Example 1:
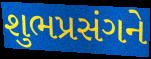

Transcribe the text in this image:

શુભપ્રસંગને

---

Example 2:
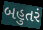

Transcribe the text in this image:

બહુતરં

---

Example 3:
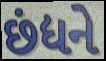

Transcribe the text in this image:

છંદ્યને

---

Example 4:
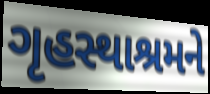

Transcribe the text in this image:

ગૃહસ્થાશ્રમને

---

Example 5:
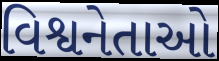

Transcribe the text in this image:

વિશ્વનેતાઓ